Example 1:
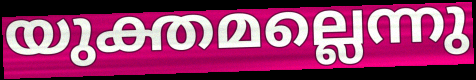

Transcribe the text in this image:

യുക്തമല്ലെന്നു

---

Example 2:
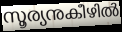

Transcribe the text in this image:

സൂര്യനുകീഴിൽ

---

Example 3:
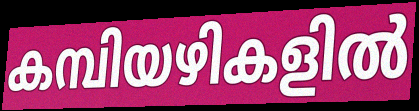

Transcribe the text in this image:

കമ്പിയഴികളിൽ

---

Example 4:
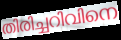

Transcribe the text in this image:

തിരിച്ചറിവിനെ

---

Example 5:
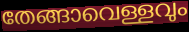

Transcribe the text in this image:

തേങ്ങാവെള്ളവും